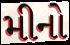
મીનો